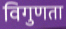
विगुणता